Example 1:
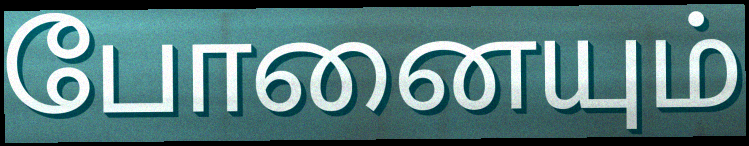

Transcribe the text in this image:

போனையும்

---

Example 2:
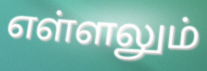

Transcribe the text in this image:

எள்ளலும்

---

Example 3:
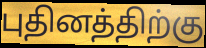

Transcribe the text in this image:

புதினத்திற்கு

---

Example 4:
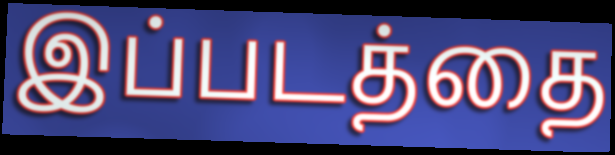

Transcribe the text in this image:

இப்படத்தை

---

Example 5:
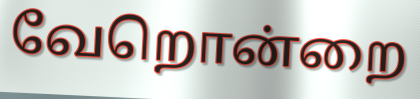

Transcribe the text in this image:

வேறொன்றை